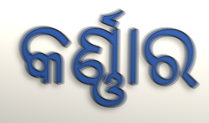
କର୍ଣ୍ଣାର